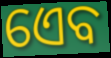
ଏେବ